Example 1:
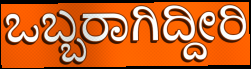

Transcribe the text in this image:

ಒಬ್ಬರಾಗಿದ್ದೀರಿ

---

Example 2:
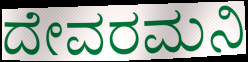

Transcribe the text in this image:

ದೇವರಮನಿ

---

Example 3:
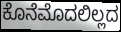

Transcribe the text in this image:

ಕೊನೆಮೊದಲಿಲ್ಲದ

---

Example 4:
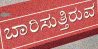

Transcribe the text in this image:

ಬಾರಿಸುತ್ತಿರುವ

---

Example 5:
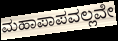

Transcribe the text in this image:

ಮಹಾಪಾಪವಲ್ಲವೇ